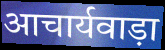
आचार्यवाड़ा